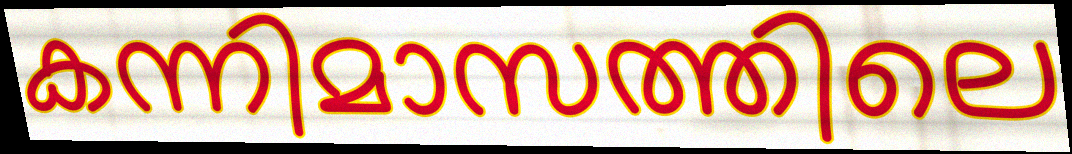
കന്നിമാസത്തിലെ